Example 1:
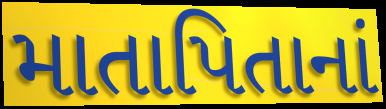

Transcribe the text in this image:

માતાપિતાનાં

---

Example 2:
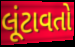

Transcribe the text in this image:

લૂંટાવતો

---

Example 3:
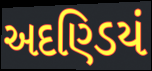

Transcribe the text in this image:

અદણ્ડિયં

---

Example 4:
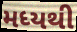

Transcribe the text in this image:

મધ્યથી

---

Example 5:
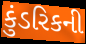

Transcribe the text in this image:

કુંડરિકની